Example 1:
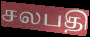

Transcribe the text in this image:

சலபதி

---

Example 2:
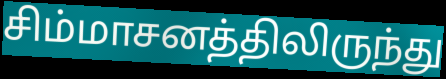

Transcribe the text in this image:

சிம்மாசனத்திலிருந்து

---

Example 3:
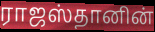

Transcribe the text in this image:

ராஜஸ்தானின்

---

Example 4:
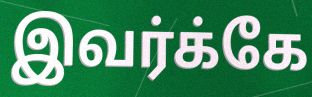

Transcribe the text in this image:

இவர்க்கே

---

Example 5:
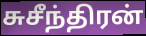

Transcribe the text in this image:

சுசீந்திரன்